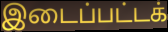
இடைப்பட்டக்